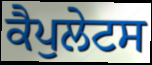
ਕੈਪੁਲੇਟਸ